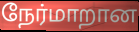
நேர்மாறான